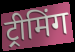
ट्रीमिंग